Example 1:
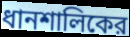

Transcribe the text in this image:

ধানশালিকের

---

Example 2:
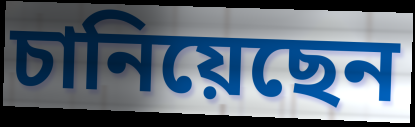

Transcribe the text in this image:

চানিয়েছেন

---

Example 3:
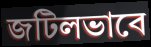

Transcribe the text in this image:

জটিলভাবে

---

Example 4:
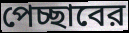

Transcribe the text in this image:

পেচ্ছাবের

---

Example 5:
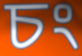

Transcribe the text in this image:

চং